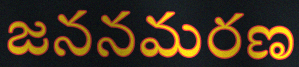
జననమరణ